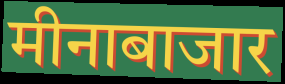
मीनाबाजार